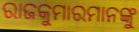
ରାଜକୁମାରମାନଙ୍କୁ